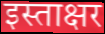
इस्ताक्षर